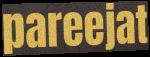
pareejat